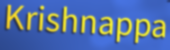
Krishnappa